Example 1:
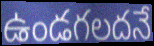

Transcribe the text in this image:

ఉండగలదనే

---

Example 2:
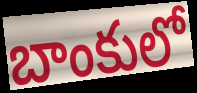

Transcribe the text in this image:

బాంకులో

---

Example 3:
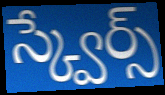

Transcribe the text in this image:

స్క్వేర్స్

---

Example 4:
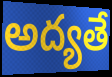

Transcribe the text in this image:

అద్యతే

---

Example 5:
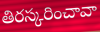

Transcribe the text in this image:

తిరస్కరించావా